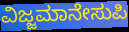
ವಿಜ್ಜಮಾನೇಸುಪಿ